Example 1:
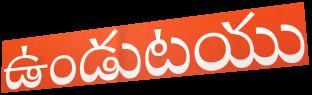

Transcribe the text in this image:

ఉండుటయు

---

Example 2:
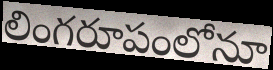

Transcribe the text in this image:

లింగరూపంలోనూ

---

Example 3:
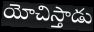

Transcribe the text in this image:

యోచిస్తాడు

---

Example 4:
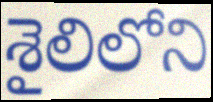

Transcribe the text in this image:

శైలిలోని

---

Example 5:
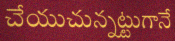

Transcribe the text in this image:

చేయుచున్నట్టుగానే